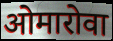
ओमारोवा